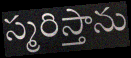
స్మరిస్తాను